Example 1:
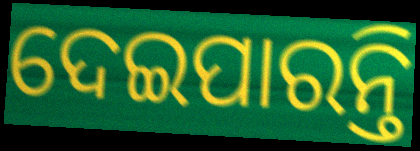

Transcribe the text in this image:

ଦେଇପାରନ୍ତି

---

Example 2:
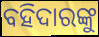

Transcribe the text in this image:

ବହିଦାରଙ୍କୁ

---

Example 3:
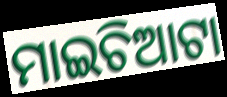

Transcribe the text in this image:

ମାଇଚିଆଟା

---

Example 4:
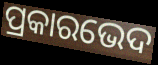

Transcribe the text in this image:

ପ୍ରକାରଭେଦ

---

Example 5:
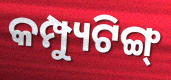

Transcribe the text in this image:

କମ୍ପ୍ୟୁଟିଙ୍ଗ୍